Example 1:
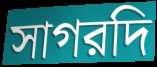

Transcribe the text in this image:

সাগরদি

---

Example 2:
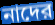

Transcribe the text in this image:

নাদের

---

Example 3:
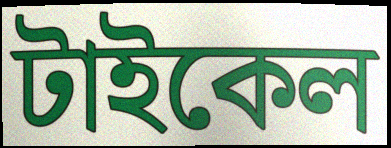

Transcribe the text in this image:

টাইকেল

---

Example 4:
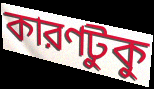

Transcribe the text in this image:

কারণটুকু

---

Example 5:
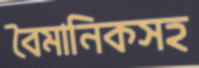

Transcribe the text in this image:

বৈমানিকসহ